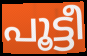
പൂട്ടീ